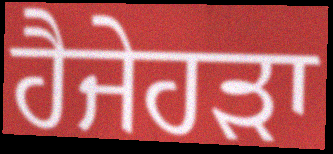
ਹੈਜੇਹੜਾ